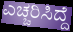
ಎಚ್ಚರಿಸಿದ್ದೆ